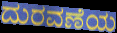
ದುರವಣೆಯ